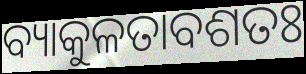
ବ୍ୟାକୁଳତାବଶତଃ